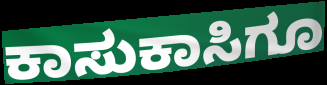
ಕಾಸುಕಾಸಿಗೂ